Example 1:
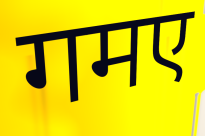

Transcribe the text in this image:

गमए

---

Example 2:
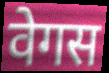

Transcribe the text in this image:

वेगस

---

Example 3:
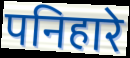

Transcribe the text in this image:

पनिहारे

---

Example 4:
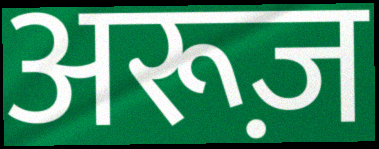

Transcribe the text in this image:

अरूज़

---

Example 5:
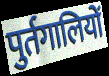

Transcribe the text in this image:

पुर्तगालियों